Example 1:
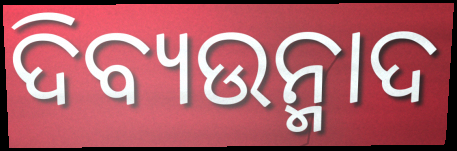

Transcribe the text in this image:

ଦିବ୍ୟଉନ୍ମାଦ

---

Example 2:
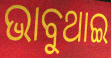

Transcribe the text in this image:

ଭାବୁଥାଇ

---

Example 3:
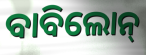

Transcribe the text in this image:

ବାବିଲୋନ୍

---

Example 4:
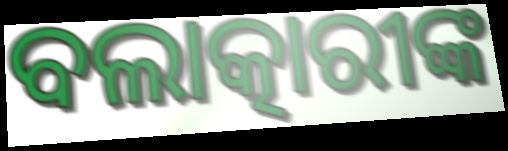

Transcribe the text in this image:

ବଲାତ୍କାରୀଙ୍କ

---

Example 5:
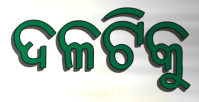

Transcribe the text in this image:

ଦଳଟିକୁ